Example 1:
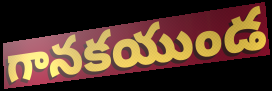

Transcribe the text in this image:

గానకయుండ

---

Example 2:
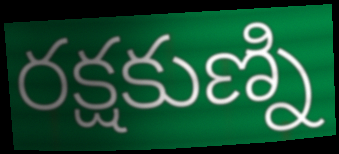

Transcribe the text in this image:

రక్షకుణ్ని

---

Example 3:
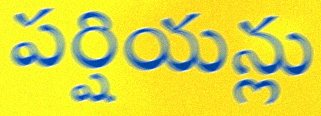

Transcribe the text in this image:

పర్షియన్లు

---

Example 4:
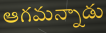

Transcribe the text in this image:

ఆగమన్నాడు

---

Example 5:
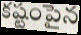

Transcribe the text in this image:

కష్టంపైన